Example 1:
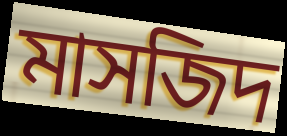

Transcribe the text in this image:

মাসজিদ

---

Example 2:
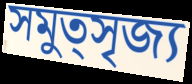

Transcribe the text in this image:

সমুত্সৃজ্য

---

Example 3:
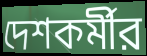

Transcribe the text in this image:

দেশকর্মীর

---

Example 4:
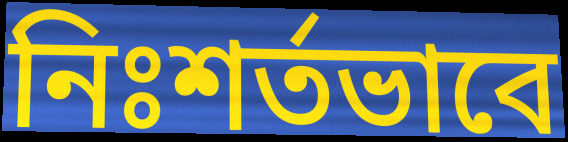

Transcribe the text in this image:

নিঃশর্তভাবে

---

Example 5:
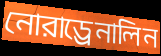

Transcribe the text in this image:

নোরাড্রেনালিন